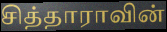
சித்தாராவின்